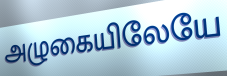
அழுகையிலேயே